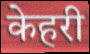
केहरी